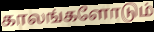
காலங்களோடும்